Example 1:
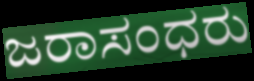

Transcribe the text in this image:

ಜರಾಸಂಧರು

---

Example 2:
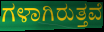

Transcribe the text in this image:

ಗಳಾಗಿರುತ್ತವೆ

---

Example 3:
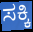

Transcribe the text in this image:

ಸಕ್ಕಿ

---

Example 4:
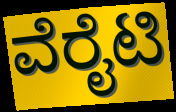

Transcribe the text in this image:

ವೆರೈಟಿ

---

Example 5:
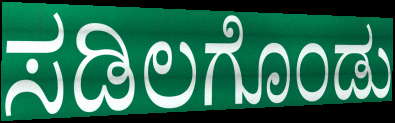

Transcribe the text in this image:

ಸಡಿಲಗೊಂಡು